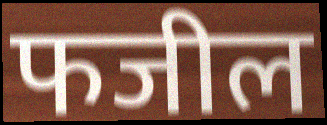
फजील